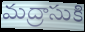
మద్రాసుకి